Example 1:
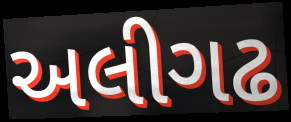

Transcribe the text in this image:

અલીગઢ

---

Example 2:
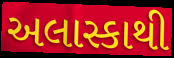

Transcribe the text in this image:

અલાસ્કાથી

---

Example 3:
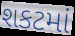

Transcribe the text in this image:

શકટમાં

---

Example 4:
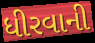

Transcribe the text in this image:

ધીરવાની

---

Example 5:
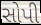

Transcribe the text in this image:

સોપી